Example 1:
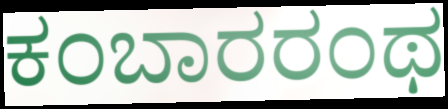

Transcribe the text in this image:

ಕಂಬಾರರಂಥ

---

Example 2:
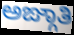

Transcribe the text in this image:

ಅಙ್ಗಾತಿ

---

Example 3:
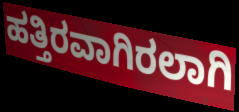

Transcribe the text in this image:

ಹತ್ತಿರವಾಗಿರಲಾಗಿ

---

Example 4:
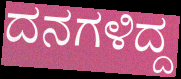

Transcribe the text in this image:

ದನಗಳಿದ್ದ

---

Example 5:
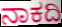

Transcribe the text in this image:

ನಾಕದಿ